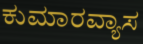
ಕುಮಾರವ್ಯಾಸ